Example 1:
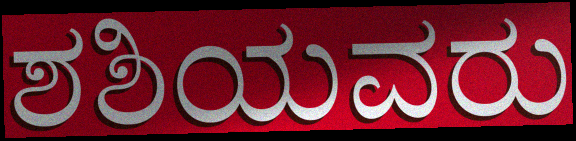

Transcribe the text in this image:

ಶಶಿಯವರು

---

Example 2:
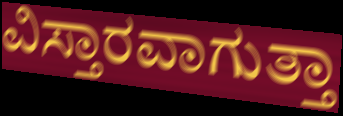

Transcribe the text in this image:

ವಿಸ್ತಾರವಾಗುತ್ತಾ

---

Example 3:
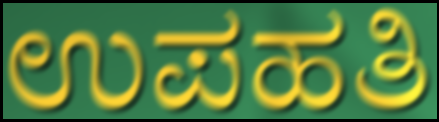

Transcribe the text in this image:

ಉಪಹತಿ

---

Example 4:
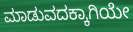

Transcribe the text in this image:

ಮಾಡುವದಕ್ಕಾಗಿಯೇ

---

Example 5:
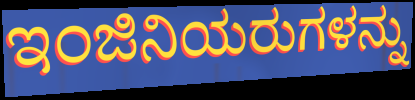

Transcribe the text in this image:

ಇಂಜಿನಿಯರುಗಳನ್ನು